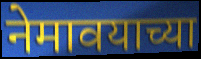
नेमावयाच्या